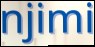
njimi